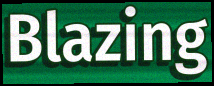
Blazing